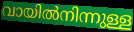
വായിൽനിന്നുള്ള